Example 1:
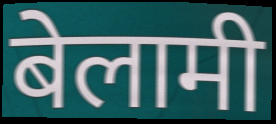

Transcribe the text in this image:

बेलामी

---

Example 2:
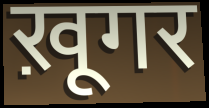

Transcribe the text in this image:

ख़ूगर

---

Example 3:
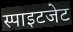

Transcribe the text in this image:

स्पाइटजेट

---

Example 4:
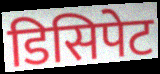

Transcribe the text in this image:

डिसिपेट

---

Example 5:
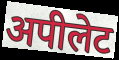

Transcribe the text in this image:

अपीलेट